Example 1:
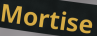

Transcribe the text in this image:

Mortise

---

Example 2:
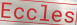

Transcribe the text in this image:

Eccles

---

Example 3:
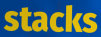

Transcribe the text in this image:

stacks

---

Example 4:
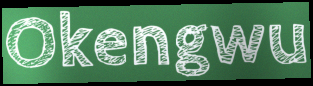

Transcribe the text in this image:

Okengwu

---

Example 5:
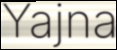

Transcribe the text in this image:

Yajna